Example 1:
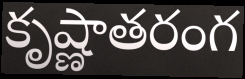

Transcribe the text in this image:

కృష్ణాతరంగ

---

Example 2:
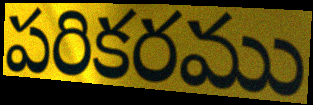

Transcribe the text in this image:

పరికరము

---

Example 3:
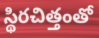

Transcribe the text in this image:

స్థిరచిత్తంతో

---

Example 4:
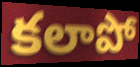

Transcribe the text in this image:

కలాపో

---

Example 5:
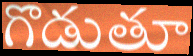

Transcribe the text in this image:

గొడుతూ